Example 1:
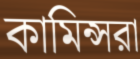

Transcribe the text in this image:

কামিন্সরা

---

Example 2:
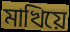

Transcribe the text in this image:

মাখিয়ে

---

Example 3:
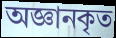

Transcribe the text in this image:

অজ্ঞানকৃত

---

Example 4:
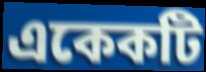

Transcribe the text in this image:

একেকটি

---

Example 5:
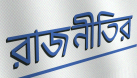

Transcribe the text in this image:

রাজনীতির